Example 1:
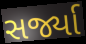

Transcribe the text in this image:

સર્જ્યા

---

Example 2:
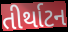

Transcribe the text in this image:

તીર્થાટન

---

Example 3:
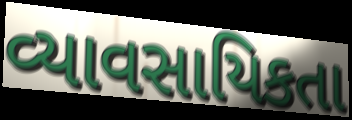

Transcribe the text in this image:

વ્યાવસાયિકતા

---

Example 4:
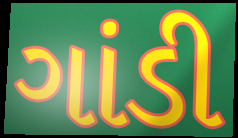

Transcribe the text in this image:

ગાંડી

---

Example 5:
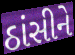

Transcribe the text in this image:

ઠાંસીને